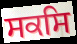
ਸਕਸਿ